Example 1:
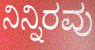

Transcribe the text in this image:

ನಿನ್ನಿರವು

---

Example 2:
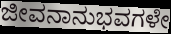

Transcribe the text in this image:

ಜೀವನಾನುಭವಗಳೇ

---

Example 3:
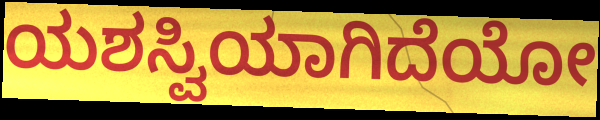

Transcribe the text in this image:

ಯಶಸ್ವಿಯಾಗಿದೆಯೋ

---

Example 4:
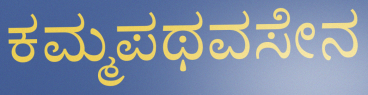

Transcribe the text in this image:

ಕಮ್ಮಪಥವಸೇನ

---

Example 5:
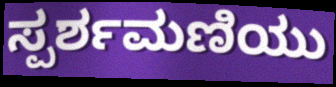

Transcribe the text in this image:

ಸ್ಪರ್ಶಮಣಿಯು